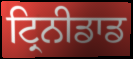
ਟ੍ਰਿਨੀਡਾਡ